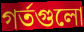
গর্তগুলো